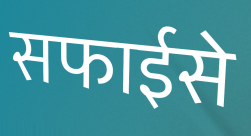
सफाईसे